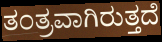
ತಂತ್ರವಾಗಿರುತ್ತದೆ